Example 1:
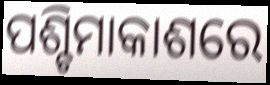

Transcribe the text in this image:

ପଶ୍ଚିମାକାଶରେ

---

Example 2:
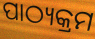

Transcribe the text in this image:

ପାଠ୍ୟକ୍ରମ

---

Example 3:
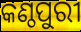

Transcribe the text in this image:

କଣ୍ଠପୁରୀ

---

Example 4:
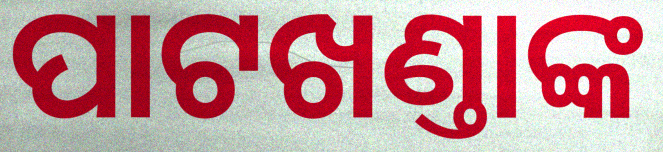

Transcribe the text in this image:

ପାଟଖଣ୍ତାଙ୍କ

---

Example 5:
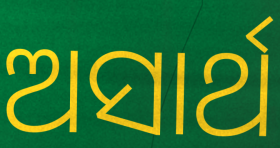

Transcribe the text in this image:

ଅସାର୍ଥ